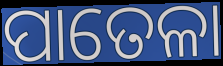
ପାତେଳା